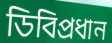
ডিবিপ্রধান